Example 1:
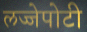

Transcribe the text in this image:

लज्जेपोटी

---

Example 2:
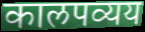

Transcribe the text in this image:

कालपव्यय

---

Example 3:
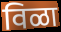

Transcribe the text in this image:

विळा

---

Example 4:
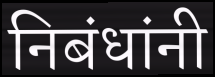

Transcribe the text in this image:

निबंधांनी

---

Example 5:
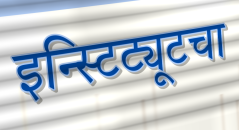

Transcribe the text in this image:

इन्स्टिट्यूटचा